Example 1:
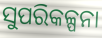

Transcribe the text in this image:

ସୁପରିକଳ୍ପନା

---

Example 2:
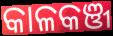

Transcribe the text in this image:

କାଳକଞ୍ଜ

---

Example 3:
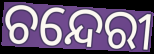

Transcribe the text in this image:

ଚନ୍ଦେରୀ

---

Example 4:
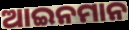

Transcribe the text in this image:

ଆଇନମାନ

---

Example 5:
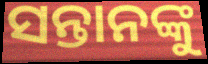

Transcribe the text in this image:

ସନ୍ତାନଙ୍କୁ